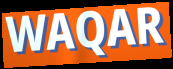
WAQAR